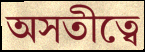
অসতীত্বে